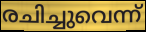
രചിച്ചുവെന്ന്